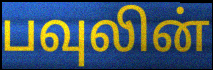
பவுலின்